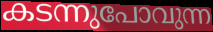
കടന്നുപോവുന്ന